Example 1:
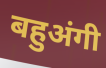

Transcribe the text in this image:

बहुअंगी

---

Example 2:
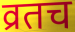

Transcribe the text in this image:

व्रतच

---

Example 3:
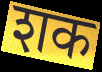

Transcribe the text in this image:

शक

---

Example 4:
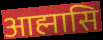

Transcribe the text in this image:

आह्मासि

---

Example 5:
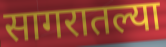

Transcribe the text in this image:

सागरातल्या